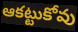
ఆకట్టుకోవు